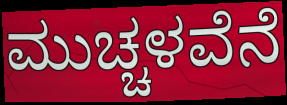
ಮುಚ್ಚಳವೆನೆ